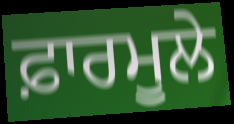
ਫ਼ਾਰਮੂਲੇ